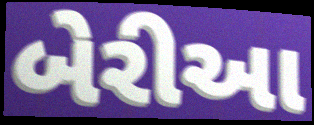
બેરીઆ